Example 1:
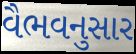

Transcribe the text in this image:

વૈભવનુસાર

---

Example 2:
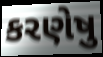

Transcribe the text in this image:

કરણેષુ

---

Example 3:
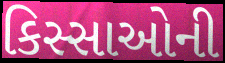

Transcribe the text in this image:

કિસ્સાઓની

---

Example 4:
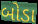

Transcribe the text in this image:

બોડા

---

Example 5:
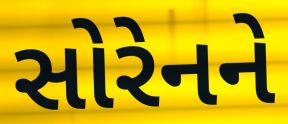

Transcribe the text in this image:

સોરેનને